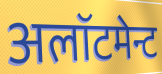
अलॉटमेन्ट